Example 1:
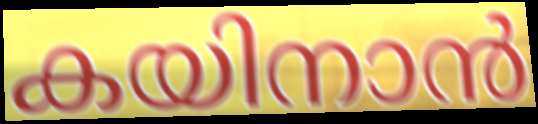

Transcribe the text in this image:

കയിനാൻ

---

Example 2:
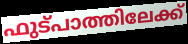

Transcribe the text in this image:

ഫുട്പാത്തിലേക്ക്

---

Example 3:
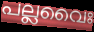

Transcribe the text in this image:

പല്ലവൈഃ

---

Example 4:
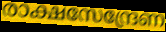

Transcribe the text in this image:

രാക്ഷസേന്ദ്രേണ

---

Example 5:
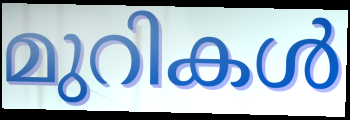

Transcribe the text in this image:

മുറികൾ